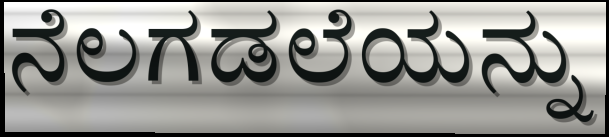
ನೆಲಗಡಲೆಯನ್ನು